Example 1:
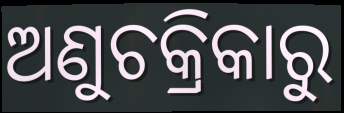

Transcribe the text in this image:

ଅଣୁଚକ୍ରିକାରୁ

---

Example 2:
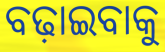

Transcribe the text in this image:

ବଢ଼ାଇବାକୁ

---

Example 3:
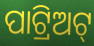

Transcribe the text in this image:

ପାଟ୍ରିଅଟ୍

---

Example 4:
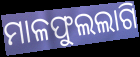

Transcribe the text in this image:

ମାଳଫୁଲଲାଗି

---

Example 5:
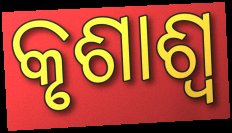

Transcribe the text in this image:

କୃଶାଶ୍ୱ